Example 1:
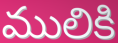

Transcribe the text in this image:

ములికి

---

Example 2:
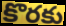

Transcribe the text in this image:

కొరకు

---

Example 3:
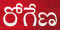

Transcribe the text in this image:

రోగేణ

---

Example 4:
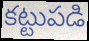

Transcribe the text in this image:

కట్టుపడి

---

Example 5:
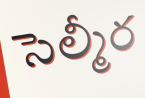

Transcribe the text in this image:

సెల్మీర